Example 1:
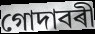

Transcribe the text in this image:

গোদাবৰী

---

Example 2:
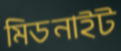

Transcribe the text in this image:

মিডনাইট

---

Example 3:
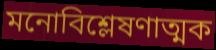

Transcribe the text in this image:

মনোবিশ্লেষণাত্মক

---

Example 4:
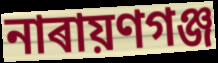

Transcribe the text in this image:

নাৰায়ণগঞ্জ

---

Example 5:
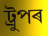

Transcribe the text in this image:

ট্ৰুপৰ